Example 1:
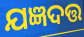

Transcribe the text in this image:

ଯଜ୍ଞଦତ୍ତ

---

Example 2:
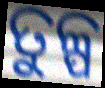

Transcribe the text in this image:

ତୁଳ୍ପ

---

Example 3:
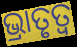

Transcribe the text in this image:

ଭ୍ରାତୃତ୍ଵ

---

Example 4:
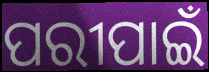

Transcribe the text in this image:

ପରୀପାଇଁ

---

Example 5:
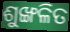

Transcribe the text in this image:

ଶୁଙ୍ଖଳିତ